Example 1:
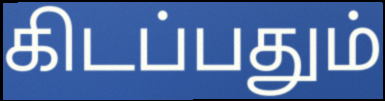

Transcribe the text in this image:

கிடப்பதும்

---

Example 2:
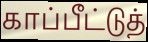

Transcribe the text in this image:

காப்பீட்டுத்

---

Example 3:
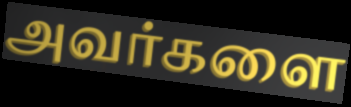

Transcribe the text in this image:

அவர்களை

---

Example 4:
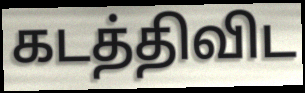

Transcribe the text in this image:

கடத்திவிட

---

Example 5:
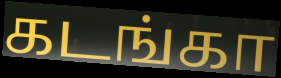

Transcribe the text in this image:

கடங்கா